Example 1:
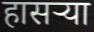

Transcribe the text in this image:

हासऱ्या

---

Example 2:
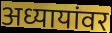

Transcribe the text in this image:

अध्यायांवर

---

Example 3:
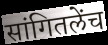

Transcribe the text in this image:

सांगितलेंच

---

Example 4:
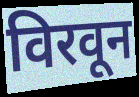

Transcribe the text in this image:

विरवून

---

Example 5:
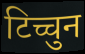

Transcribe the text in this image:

टिच्चुन